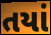
તયાં